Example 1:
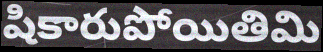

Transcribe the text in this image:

షికారుపోయితిమి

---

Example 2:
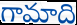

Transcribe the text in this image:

గామాది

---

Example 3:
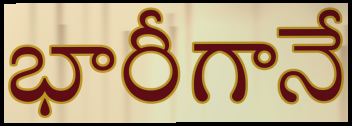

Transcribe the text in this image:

భారీగానే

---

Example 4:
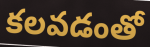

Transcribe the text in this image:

కలవడంతో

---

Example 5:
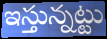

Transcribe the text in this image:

ఇస్తున్నట్టు